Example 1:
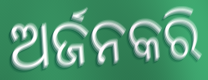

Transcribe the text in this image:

ଅର୍ଜନକରି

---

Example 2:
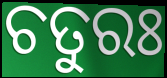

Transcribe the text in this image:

ଚତୁରଃ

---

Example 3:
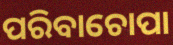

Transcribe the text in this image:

ପରିବାଚୋପା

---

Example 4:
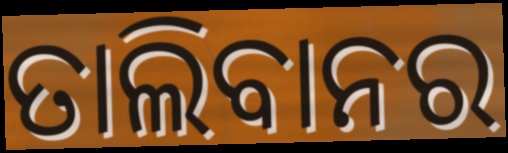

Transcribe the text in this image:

ତାଲିବାନର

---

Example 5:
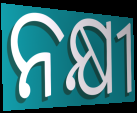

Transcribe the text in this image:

ନକ୍ଷୀ